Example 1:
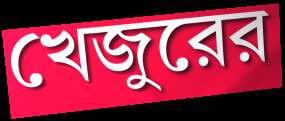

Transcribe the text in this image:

খেজুরের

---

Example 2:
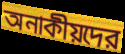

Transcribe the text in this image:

অনাকীয়দের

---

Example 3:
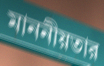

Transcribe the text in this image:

মাননীয়তার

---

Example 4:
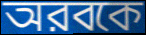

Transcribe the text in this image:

অরবকে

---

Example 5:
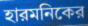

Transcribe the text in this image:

হারমনিকের